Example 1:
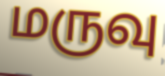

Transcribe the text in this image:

மருவு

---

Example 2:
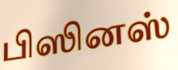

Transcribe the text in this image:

பிஸினஸ்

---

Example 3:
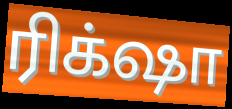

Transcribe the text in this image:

ரிக்‌ஷா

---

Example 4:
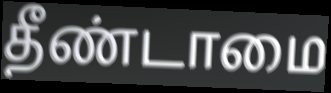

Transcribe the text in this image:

தீண்டாமை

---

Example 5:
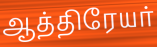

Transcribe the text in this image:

ஆத்திரேயர்